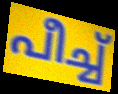
പീച്ച്